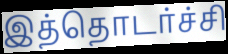
இத்தொடர்ச்சி